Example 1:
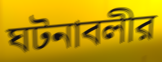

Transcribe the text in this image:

ঘটনাবলীর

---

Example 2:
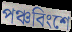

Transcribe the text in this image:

পঞ্চবিংশে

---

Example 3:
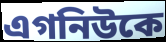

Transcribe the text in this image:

এগনিউকে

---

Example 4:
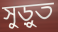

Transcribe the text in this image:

সুড়ুত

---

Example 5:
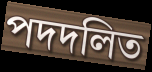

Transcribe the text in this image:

পদদলিত